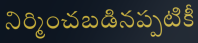
నిర్మించబడినప్పటికీ